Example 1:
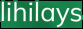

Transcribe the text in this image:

lihilays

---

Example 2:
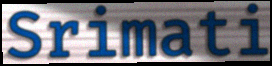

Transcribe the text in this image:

Srimati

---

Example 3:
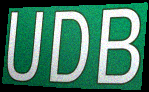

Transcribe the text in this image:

UDB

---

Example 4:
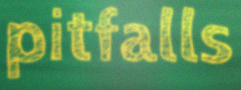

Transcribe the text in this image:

pitfalls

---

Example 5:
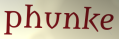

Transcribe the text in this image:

phunke